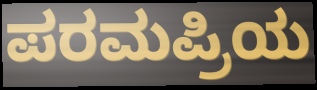
ಪರಮಪ್ರಿಯ